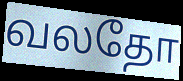
வலதோ